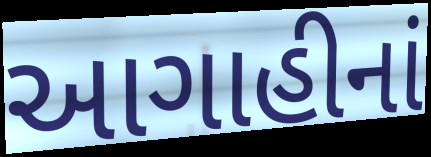
આગાહીનાં